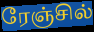
ரேஞ்சில்